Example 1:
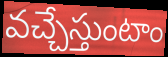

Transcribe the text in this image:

వచ్చేస్తుంటాం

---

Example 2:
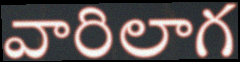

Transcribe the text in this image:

వారిలాగ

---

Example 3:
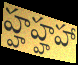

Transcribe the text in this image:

హ్హహ్హహా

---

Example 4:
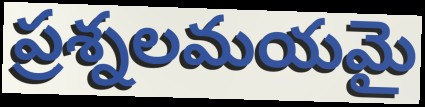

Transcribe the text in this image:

ప్రశ్నలమయమై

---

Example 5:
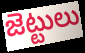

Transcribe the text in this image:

జెట్టులు